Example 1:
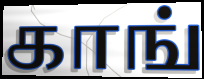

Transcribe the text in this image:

காங்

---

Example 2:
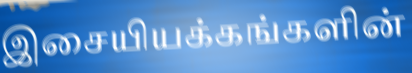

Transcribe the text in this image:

இசையியக்கங்களின்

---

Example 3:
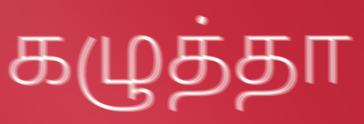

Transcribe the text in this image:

கழுத்தா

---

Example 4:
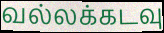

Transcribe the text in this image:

வல்லக்கடவு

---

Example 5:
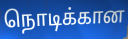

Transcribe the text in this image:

நொடிக்கான